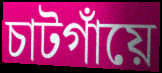
চাটগাঁয়ে